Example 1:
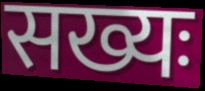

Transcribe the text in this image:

सख्यः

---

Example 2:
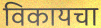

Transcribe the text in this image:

विकायचा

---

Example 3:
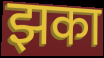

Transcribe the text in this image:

झका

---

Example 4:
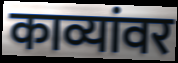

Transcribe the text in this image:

काव्यांवर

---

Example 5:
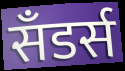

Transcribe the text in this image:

सॅंडर्स